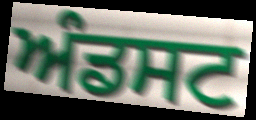
ਅੰਡਸਟ